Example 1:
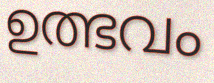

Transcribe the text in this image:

ഉത്ഭവം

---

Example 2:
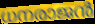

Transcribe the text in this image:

ധനരാജൻ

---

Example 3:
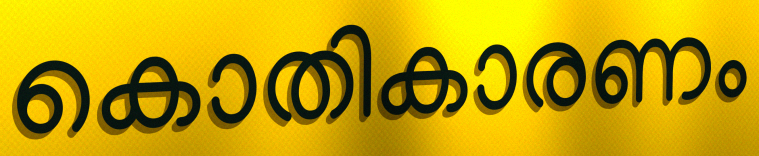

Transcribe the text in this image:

കൊതികാരണം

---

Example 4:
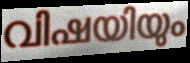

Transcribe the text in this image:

വിഷയിയും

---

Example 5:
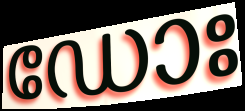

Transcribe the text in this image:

ഡോഃ